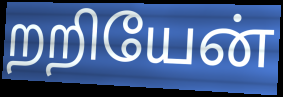
றறியேன்